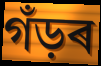
গঁড়ৰ